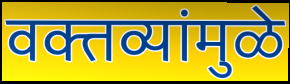
वक्तव्यांमुळे